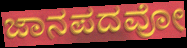
ಜಾನಪದವೋ